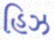
હિઝ